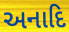
અનાદિ